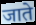
जाते